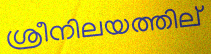
ശ്രീനിലയത്തില്